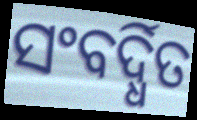
ସଂବର୍ଦ୍ଧିତ